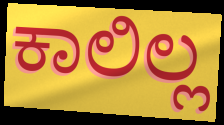
ಕಾಲಿಲ್ಲ